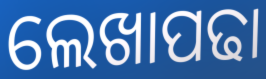
ଲେଖାପଢା